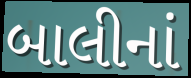
બાલીનાં